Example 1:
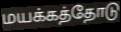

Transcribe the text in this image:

மயக்கத்தோடு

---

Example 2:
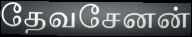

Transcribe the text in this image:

தேவசேனன்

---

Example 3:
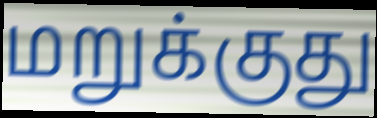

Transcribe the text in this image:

மறுக்குது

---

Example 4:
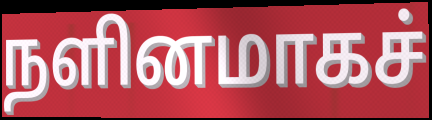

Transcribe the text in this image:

நளினமாகச்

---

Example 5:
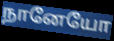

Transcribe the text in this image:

நானேயோ